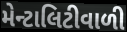
મેન્ટાલિટીવાળી